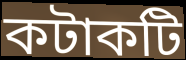
কটাকটি